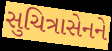
સુચિત્રાસેનને